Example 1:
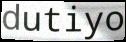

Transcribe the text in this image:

dutiyo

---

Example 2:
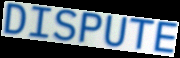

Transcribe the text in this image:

DISPUTE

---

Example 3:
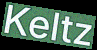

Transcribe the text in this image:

Keltz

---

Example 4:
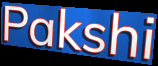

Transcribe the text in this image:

Pakshi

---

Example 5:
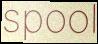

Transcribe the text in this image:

spool